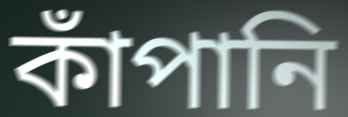
কাঁপানি